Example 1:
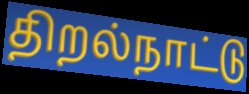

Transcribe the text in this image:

திறல்நாட்டு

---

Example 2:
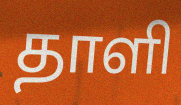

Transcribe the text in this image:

தாளி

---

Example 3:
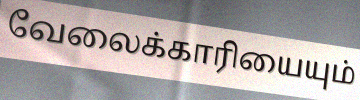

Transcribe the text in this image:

வேலைக்காரியையும்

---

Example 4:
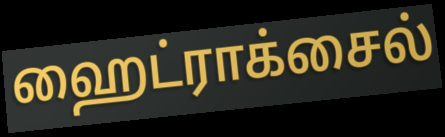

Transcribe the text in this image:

ஹைட்ராக்சைல்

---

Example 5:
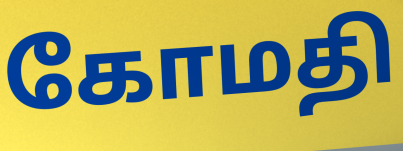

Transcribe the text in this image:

கோமதி